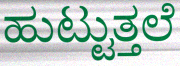
ಹುಟ್ಟುತ್ತಲೆ